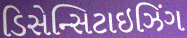
ડિસેન્સિટાઇઝિંગ